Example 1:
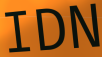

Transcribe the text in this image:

IDN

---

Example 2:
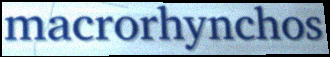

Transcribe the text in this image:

macrorhynchos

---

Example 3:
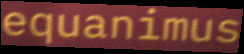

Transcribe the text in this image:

equanimus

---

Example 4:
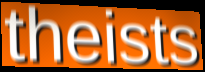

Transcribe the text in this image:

theists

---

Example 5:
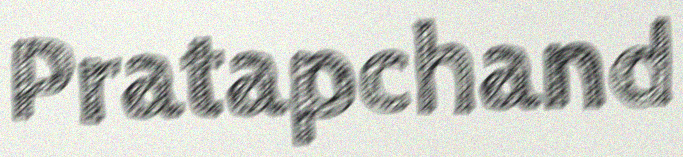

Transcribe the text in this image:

Pratapchand